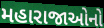
મહારાજાઓનો